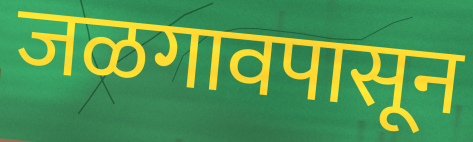
जळगावपासून